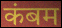
कंबम